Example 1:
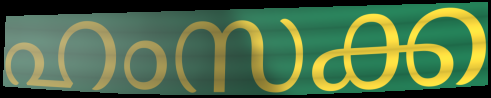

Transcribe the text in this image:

ഹംസക്ക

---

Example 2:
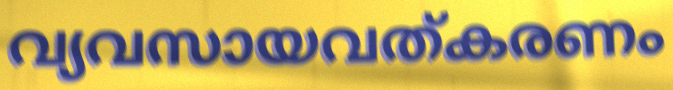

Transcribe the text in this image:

വ്യവസായവത്കരണം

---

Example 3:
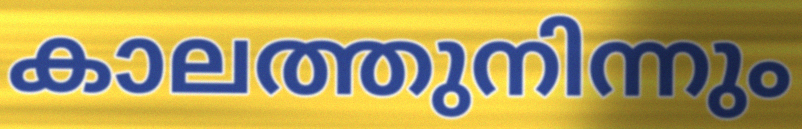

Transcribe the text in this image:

കാലത്തുനിന്നും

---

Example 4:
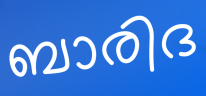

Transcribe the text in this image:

ബാരിദ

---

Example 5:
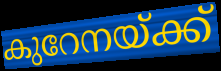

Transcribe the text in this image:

കുറേനയ്ക്ക്